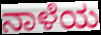
ನಾಳೆಯ